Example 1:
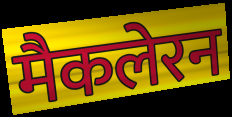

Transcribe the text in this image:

मैकलेरन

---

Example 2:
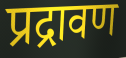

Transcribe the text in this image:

प्रद्रावण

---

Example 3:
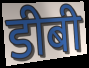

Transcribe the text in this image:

डीबी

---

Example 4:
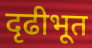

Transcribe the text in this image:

दृढीभूत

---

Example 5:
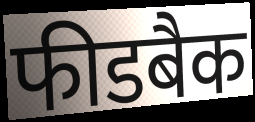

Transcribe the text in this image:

फीडबैक